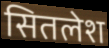
सितलेश